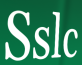
Sslc